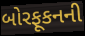
બોરફૂકનની